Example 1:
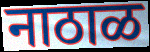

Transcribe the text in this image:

नाठाळ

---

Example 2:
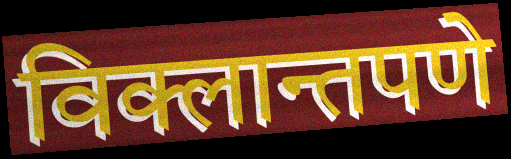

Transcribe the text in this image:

विक्लान्तपणे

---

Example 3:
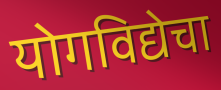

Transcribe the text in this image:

योगविद्येचा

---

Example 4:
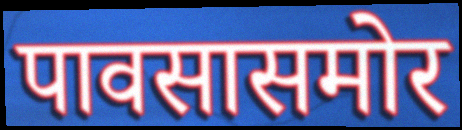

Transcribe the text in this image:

पावसासमोर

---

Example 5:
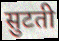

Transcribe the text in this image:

सुटती